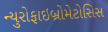
ન્યુરોફાઇબ્રોમેટોસિસ